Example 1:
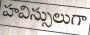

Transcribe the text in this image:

హవిస్సులుగా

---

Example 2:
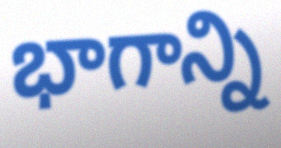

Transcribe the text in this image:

భాగాన్ని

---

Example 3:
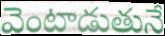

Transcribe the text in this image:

వెంటాడుతునే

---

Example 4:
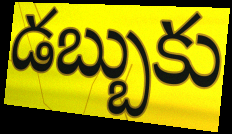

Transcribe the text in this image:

డబ్బుకు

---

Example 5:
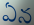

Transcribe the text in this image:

ఏన